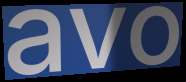
avo